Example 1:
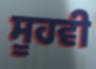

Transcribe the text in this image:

ਸੂਹਵੀ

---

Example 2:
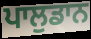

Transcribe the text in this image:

ਪਾਲੁਡਾਨ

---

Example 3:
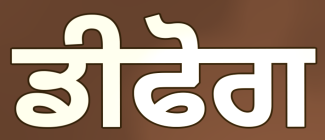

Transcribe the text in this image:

ਡੀਫੋਗ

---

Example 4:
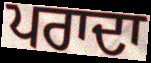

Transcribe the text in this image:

ਪਰਾਦਾ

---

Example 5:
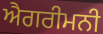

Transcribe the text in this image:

ਐਗਰੀਮਨੀ